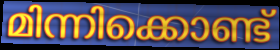
മിന്നിക്കൊണ്ട്